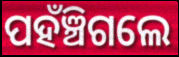
ପହଁଞ୍ଚିଗଲେ